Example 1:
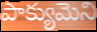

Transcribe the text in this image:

పాక్యుమెని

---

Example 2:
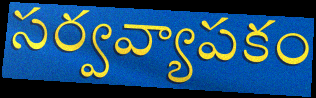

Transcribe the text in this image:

సర్వవ్యాపకం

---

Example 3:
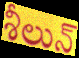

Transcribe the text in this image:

శీలున్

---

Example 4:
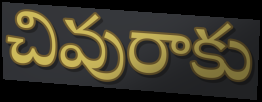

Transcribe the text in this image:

చివురాకు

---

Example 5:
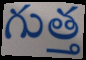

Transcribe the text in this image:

గుత్త